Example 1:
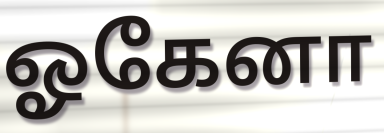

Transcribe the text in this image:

ஓகேனா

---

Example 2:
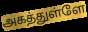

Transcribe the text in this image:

அகத்துள்ளே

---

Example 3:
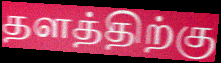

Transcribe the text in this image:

தளத்திற்கு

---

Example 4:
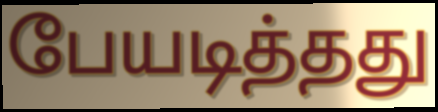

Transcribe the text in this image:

பேயடித்தது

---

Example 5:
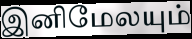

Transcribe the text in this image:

இனிமேலயும்